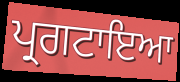
ਪ੍ਰਗਟਾਇਆ